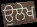
ਉਲੇਖ